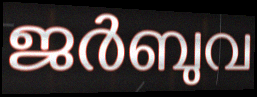
ജർബുവ